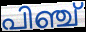
പിഞ്ച്